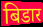
बिडार